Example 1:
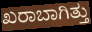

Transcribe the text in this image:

ಖರಾಬಾಗಿತ್ತು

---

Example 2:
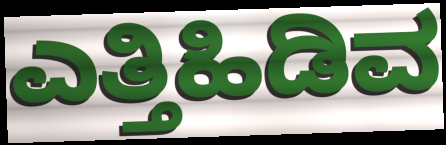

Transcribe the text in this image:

ಎತ್ತಿಹಿಡಿವ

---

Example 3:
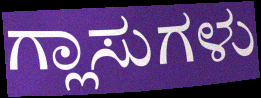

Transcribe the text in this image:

ಗ್ಲಾಸುಗಳು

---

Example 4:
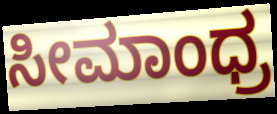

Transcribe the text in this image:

ಸೀಮಾಂಧ್ರ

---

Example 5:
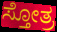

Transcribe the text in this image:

ಸ್ತೋತ್ರ